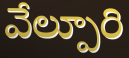
వేల్పూరి